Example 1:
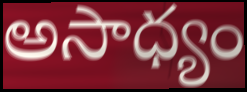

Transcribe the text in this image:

అసాధ్యం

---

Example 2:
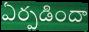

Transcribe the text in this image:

ఏర్పడిందా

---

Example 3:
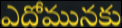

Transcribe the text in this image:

ఎదోమునకు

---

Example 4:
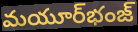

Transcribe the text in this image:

మయూర్‌భంజ్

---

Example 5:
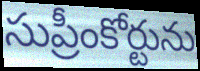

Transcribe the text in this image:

సుప్రీంకోర్టును